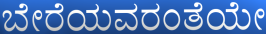
ಬೇರೆಯವರಂತೆಯೇ